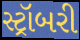
સ્ટ્રૉબરી